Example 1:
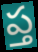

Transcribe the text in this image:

ప్త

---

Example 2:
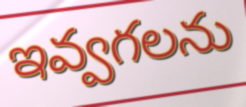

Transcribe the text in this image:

ఇవ్వగలను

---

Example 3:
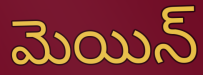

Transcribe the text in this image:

మెయిన్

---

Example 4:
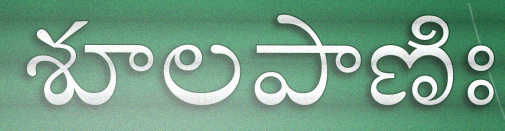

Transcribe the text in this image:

శూలపాణిః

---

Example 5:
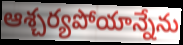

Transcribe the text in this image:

ఆశ్చర్యపోయాన్నేను